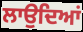
ਲਾਉਦਿਆਂ